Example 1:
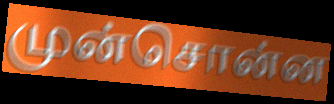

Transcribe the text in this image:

முன்சொன்ன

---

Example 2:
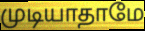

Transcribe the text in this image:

முடியாதாமே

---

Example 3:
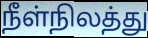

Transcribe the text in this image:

நீள்நிலத்து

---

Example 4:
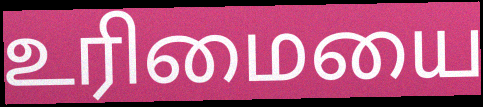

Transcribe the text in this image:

உரிமையை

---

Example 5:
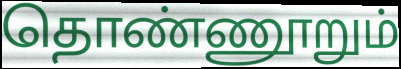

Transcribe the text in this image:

தொண்ணூறும்